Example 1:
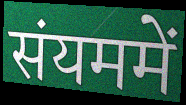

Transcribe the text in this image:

संयममें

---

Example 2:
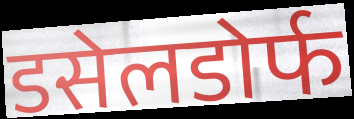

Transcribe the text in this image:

डसेलडोर्फ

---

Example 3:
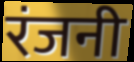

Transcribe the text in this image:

रंजनी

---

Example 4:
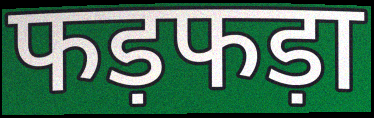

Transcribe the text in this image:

फड़फड़ा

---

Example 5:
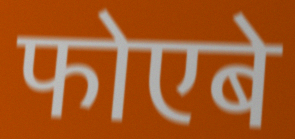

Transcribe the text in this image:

फोएबे